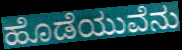
ಹೊಡೆಯುವೆನು